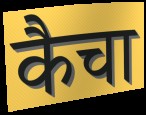
कैचा